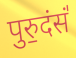
पुरु॒दंसं॑